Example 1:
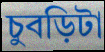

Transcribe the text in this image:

চুবড়িটা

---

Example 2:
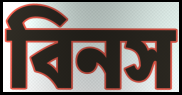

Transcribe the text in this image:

বিনস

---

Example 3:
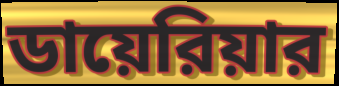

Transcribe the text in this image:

ডায়েরিয়ার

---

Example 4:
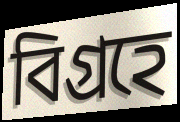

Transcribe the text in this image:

বিগ্রহে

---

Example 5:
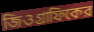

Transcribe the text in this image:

জিওগ্রাফিকের